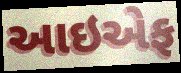
આઇએફ